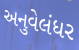
અનુવેલંધર